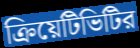
ক্রিয়েটিভিটির